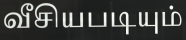
வீசியபடியும்